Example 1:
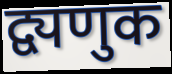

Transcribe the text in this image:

द्व्यणुक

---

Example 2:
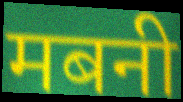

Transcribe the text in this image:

मबनी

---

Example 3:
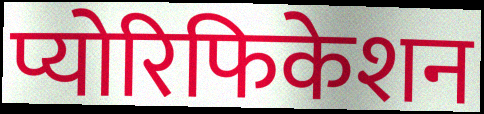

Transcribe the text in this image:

प्योरिफिकेशन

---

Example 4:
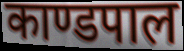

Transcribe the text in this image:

काण्डपाल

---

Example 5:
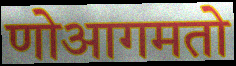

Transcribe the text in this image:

णोआगमतो